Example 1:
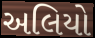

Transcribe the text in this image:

અલિયો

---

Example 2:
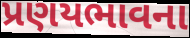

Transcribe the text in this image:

પ્રણયભાવના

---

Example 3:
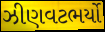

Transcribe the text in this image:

ઝીણવટભર્યો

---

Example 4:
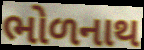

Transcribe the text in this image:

ભોળનાથ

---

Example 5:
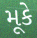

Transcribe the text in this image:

મૂકે